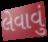
લેવાવું